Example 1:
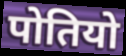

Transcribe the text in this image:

पोतियो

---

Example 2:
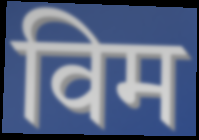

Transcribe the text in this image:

विम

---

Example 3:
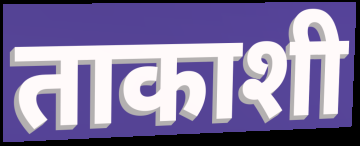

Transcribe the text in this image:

ताकाशी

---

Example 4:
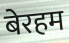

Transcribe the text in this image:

बेरहम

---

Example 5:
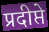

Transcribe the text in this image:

प्रदीप्ते